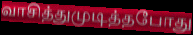
வாசித்துமுடித்தபோது